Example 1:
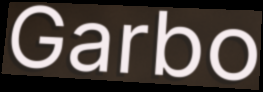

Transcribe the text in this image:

Garbo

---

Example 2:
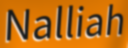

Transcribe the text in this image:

Nalliah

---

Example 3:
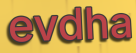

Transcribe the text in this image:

evdha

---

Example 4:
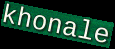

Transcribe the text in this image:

khonale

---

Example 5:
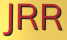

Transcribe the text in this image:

JRR